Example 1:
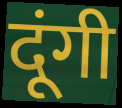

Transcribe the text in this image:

दूंगी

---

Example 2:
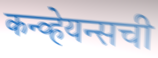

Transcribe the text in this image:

कन्व्हेयन्सची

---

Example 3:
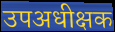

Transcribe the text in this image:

उपअधीक्षक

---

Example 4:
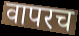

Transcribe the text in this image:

वापरच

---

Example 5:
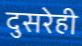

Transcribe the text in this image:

दुसरेही